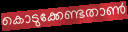
കൊടുക്കേണ്ടതാൺ